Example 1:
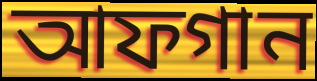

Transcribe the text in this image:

আফগান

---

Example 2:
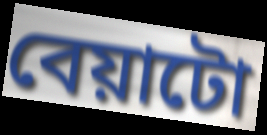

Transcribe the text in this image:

বেয়াটো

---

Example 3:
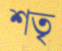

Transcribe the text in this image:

শতৃ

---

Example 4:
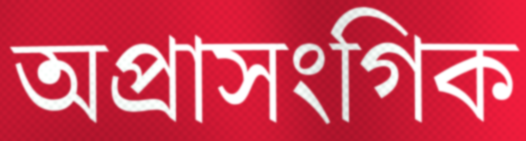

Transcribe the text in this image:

অপ্ৰাসংগিক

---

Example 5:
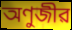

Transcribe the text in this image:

অণুজীৱ